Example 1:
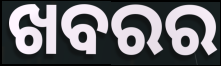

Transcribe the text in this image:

ଖବରର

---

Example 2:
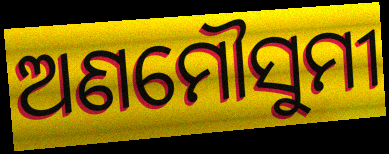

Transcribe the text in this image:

ଅଣମୌସୁମୀ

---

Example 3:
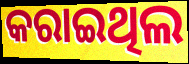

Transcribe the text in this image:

କରାଇଥିଲ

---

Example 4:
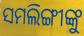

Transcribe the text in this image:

ସମଲିଙ୍ଗୀଙ୍କୁ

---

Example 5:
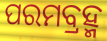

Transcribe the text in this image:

ପରମବ୍ରହ୍ମ